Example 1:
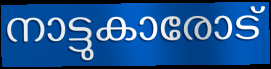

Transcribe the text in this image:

നാട്ടുകാരോട്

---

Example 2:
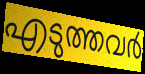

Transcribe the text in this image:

എടുത്തവർ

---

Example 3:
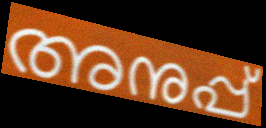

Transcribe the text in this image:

അനുപ്പ്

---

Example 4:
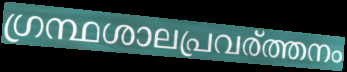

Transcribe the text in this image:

ഗ്രന്ഥശാലപ്രവര്ത്തനം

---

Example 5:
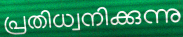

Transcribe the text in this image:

പ്രതിധ്വനിക്കുന്നു